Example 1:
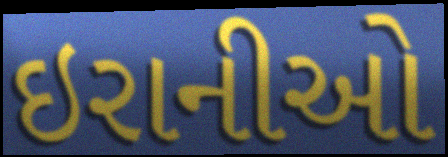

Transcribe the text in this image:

ઇરાનીઓ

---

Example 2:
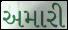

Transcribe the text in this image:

અમારી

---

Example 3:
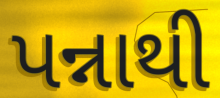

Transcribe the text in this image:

પન્નાથી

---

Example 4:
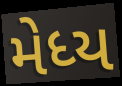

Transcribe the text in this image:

મેધ્ય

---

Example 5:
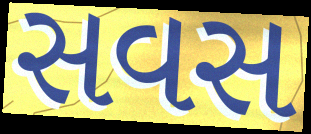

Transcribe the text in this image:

સવસ